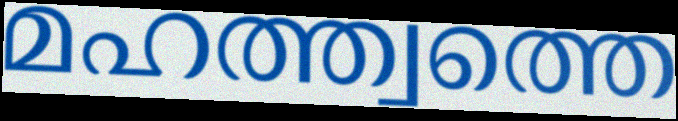
മഹത്ത്വത്തെ